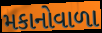
મકાનોવાળા